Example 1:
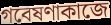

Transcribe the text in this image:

গবেষণাকাজে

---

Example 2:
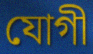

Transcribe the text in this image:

যোগী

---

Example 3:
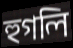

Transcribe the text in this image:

হুগলি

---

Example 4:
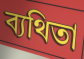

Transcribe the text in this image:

ব্যথিতা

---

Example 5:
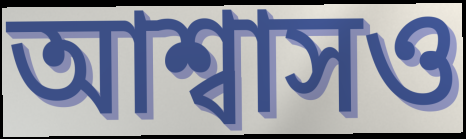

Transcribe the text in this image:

আশ্বাসও